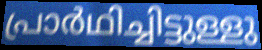
പ്രാർഥിച്ചിട്ടുള്ളു